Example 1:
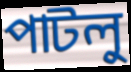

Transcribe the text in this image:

পাটলু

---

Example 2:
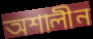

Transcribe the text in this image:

অশালীন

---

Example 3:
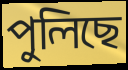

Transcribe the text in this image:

পুলিছে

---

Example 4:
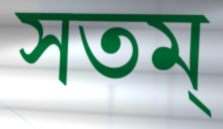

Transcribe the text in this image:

সতম্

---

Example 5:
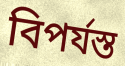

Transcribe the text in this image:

বিপৰ্যস্ত